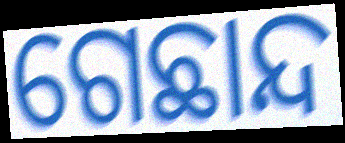
ଗେଛାନ୍ଦ